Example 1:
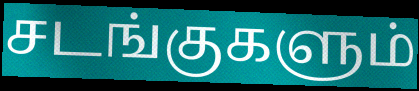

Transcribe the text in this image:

சடங்குகளும்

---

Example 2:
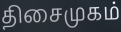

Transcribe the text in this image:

திசைமுகம்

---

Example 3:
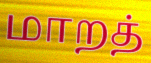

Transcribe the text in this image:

மாறத்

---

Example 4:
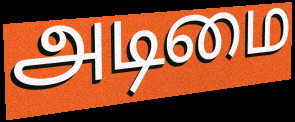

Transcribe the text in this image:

அடிமை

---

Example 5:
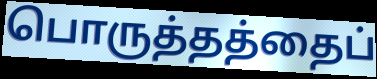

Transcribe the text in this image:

பொருத்தத்தைப்